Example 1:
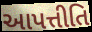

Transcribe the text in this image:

આપત્તીતિ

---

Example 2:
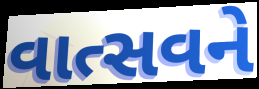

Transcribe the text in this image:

વાત્સવને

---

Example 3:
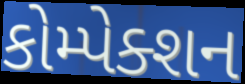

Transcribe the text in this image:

કોમ્પેક્શન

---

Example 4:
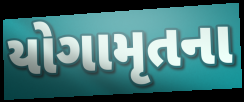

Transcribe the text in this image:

યોગામૃતના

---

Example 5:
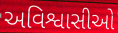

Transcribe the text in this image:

અવિશ્વાસીઓ